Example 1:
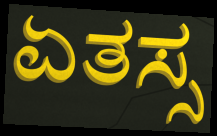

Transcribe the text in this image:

ಏತಸ್ಸ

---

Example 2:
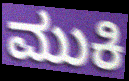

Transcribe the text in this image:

ಮುಕಿ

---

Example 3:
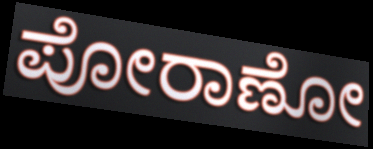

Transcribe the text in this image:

ಪೋರಾಣೋ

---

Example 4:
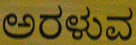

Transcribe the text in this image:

ಅರಳುವ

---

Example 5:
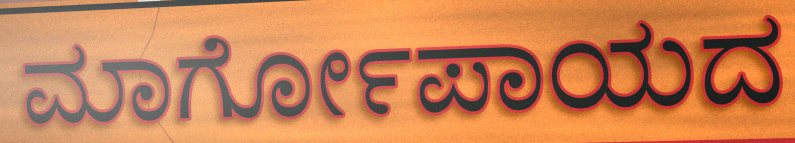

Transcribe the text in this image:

ಮಾರ್ಗೋಪಾಯದ